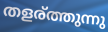
തളര്ത്തുന്നു